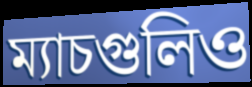
ম্যাচগুলিও